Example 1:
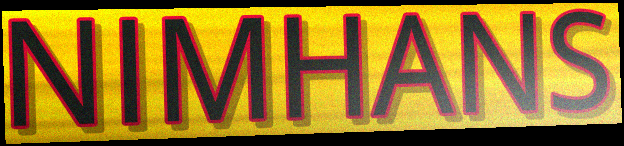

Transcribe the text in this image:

NIMHANS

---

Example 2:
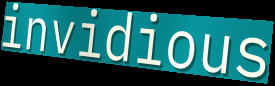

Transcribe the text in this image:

invidious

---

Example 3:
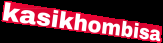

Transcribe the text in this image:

kasikhombisa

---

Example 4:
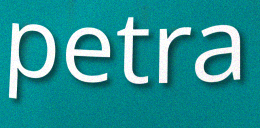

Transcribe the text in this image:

petra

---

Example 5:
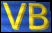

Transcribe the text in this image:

VB